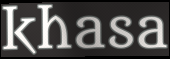
khasa